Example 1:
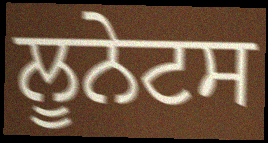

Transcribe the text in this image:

ਲੂਨੇਟਸ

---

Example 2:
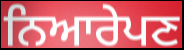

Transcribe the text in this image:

ਨਿਆਰੇਪਣ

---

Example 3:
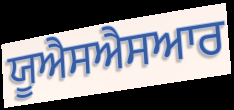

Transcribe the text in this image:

ਯੂਐਸਐਸਆਰ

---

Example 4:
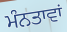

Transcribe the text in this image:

ਮੰਨਤਾਵਾਂ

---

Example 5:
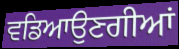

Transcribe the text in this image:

ਵਡਿਆਉਣਗੀਆਂ